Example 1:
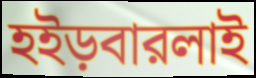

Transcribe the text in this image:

হইড়বারলাই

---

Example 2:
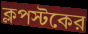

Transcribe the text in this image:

ক্লপস্টকের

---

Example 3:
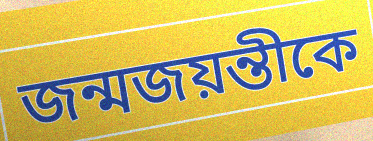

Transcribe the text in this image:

জন্মজয়ন্তীকে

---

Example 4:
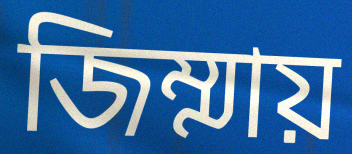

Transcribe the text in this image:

জিম্মায়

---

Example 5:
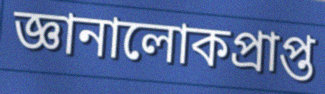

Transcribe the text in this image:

জ্ঞানালোকপ্রাপ্ত